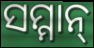
ସମ୍ମାନ୍